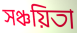
সঞ্চয়িতা